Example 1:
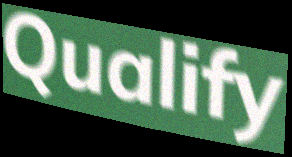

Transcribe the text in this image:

Qualify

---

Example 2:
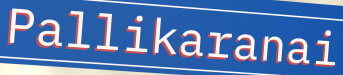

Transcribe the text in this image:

Pallikaranai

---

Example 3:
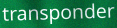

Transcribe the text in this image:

transponder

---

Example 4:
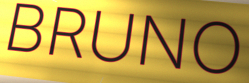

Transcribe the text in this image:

BRUNO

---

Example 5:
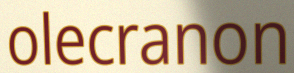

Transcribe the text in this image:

olecranon